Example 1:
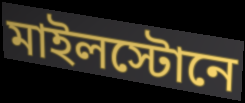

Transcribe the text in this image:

মাইলস্টোনে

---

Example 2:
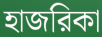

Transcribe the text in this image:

হাজরিকা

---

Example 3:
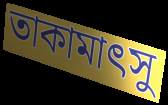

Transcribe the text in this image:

তাকামাৎসু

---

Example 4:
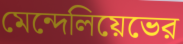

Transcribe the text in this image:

মেন্দেলিয়েভের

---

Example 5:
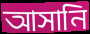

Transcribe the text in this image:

আসানি